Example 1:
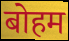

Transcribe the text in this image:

बोहम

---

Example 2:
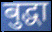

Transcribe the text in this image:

बुद्धा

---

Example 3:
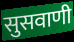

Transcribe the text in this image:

सुसवाणी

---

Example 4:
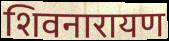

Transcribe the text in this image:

शिवनारायण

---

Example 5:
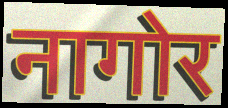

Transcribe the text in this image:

नागोर